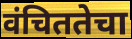
वंचिततेचा